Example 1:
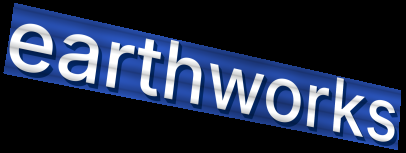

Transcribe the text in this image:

earthworks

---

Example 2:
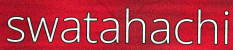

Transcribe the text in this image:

swatahachi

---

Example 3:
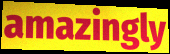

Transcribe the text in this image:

amazingly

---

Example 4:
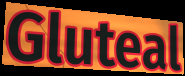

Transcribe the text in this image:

Gluteal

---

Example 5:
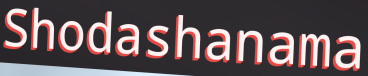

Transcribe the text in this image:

Shodashanama